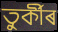
তুৰ্কীৰ